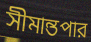
সীমান্তপার